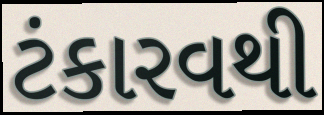
ટંકારવથી